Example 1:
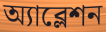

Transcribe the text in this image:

অ্যাব্লেশন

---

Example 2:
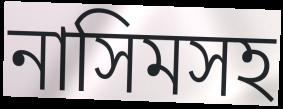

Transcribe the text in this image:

নাসিমসহ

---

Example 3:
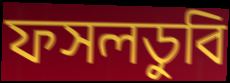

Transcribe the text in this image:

ফসলডুবি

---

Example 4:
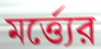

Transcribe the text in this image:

মর্ত্ত্যের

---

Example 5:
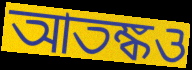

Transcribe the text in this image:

আতঙ্কও